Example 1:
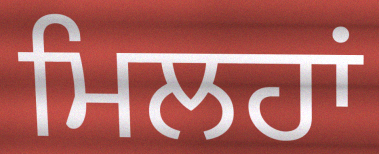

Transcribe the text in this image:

ਮਿਲਹਾਂ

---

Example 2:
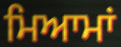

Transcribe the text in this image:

ਮਿਆਮਾਂ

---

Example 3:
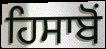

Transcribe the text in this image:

ਹਿਸਾਬੋਂ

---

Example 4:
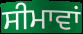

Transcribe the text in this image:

ਸੀਮਾਵਾਂ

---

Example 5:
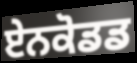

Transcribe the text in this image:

ਏਨਕੋਡਡ